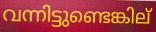
വന്നിട്ടുണ്ടെങ്കില്